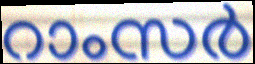
റാംസർ